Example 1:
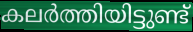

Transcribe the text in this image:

കലർത്തിയിട്ടുണ്ട്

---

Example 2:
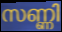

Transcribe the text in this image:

സണ്ണി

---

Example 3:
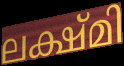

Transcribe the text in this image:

ലക്ഷ്മി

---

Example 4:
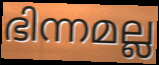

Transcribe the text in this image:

ഭിന്നമല്ല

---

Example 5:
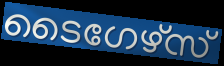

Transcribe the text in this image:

ടൈഗേഴ്സ്